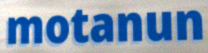
motanun